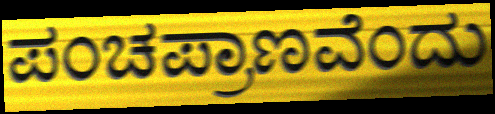
ಪಂಚಪ್ರಾಣವೆಂದು